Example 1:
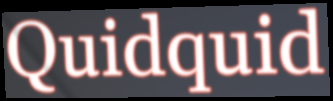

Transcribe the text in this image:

Quidquid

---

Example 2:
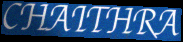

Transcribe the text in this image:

CHAITHRA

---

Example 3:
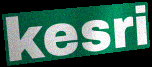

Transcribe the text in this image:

kesri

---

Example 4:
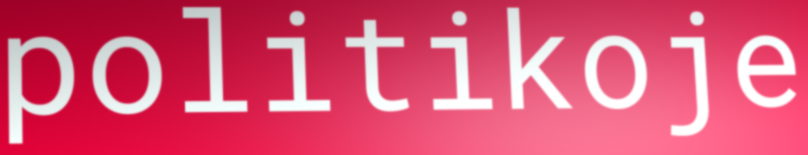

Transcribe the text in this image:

politikoje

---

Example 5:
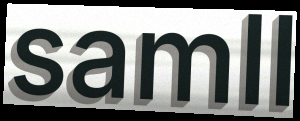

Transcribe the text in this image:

samll